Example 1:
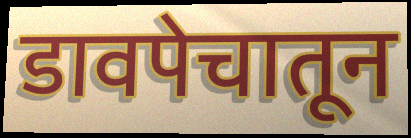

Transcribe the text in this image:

डावपेचातून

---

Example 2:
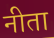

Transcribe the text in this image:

नीता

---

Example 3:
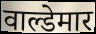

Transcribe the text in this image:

वाल्डेमार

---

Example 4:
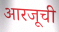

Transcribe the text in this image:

आरजूची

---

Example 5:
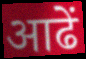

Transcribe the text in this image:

आढें